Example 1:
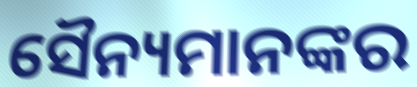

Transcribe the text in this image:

ସୈନ୍ୟମାନଙ୍କର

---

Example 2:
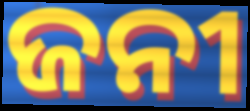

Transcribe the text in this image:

ଜନୀ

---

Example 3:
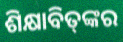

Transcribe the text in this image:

ଶିକ୍ଷାବିତ୍‌ଙ୍କର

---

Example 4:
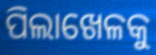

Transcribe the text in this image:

ପିଲାଖେଳକୁ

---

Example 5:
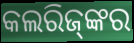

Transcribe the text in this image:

କଲରିଜ୍‌ଙ୍କର